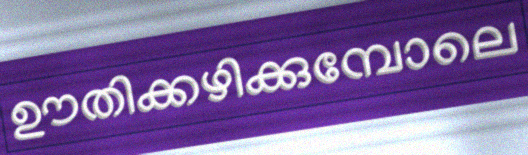
ഊതിക്കഴിക്കുമ്പോലെ